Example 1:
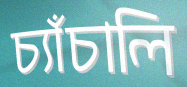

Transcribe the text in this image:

চ্যাঁচালি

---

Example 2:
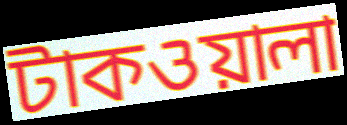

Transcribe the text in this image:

টাকওয়ালা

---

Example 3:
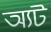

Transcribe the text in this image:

অ্যট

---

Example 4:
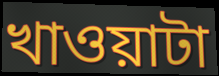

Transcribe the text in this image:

খাওয়াটা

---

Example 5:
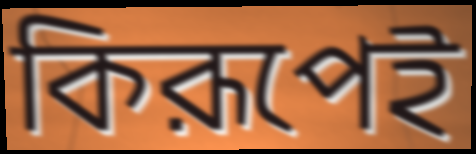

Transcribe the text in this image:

কিরূপেই